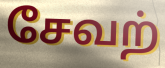
சேவற்